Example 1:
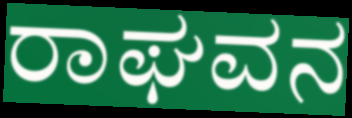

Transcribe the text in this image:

ರಾಘವನ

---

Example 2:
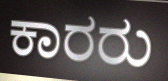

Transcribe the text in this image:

ಕಾರರು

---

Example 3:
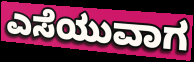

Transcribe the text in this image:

ಎಸೆಯುವಾಗ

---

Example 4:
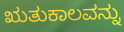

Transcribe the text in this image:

ಋತುಕಾಲವನ್ನು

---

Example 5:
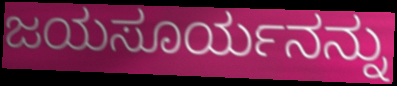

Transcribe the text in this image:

ಜಯಸೂರ್ಯನನ್ನು